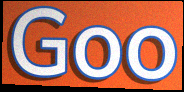
Goo